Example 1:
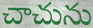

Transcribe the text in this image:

చాచును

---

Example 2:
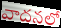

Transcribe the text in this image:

వాదనలో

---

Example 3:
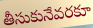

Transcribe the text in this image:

తీసుకునేవరకూ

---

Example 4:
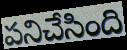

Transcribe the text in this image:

పనిచేసింది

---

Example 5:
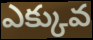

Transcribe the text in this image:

ఎక్కువ